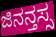
ಜಿನನ್ತಸ್ಸ